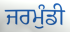
ਜਰਮੁੰਡੀ